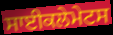
ਸਾਈਕਲੇਮੇਟਸ